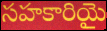
సహకారియై